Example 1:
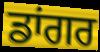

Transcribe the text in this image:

ਡਾਂਗਰ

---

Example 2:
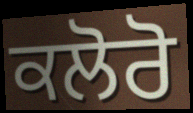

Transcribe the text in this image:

ਕਲੋਰੋ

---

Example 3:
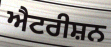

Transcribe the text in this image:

ਐਟਰੀਸ਼ਨ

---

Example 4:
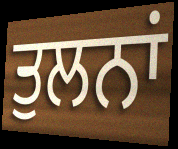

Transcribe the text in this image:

ਤੁਲਨਾਂ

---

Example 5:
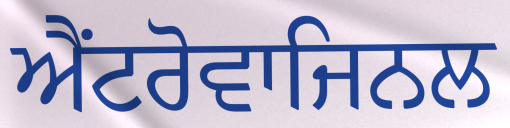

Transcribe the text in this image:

ਐਂਟਰੋਵਾਜਿਨਲ